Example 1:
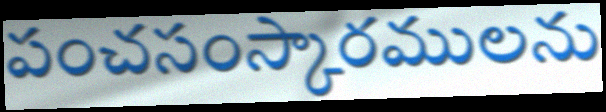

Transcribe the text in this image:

పంచసంస్కారములను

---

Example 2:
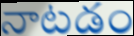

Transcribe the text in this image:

నాటడం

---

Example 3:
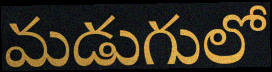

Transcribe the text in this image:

మడుగులో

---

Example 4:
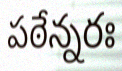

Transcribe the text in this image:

పఠేన్నరః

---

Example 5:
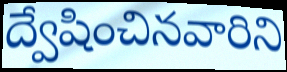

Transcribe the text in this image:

ద్వేషించినవారిని